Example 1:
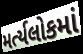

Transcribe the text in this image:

મર્ત્યલોકમાં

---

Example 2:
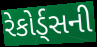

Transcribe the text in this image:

રેકોર્ડ્સની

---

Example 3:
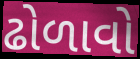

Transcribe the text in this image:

ઢોળાવો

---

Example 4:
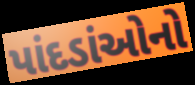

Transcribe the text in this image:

પાંદડાંઓનો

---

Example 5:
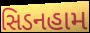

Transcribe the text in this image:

સિડનહામ